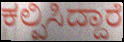
ಕಲ್ಪಿಸಿದ್ದಾರೆ